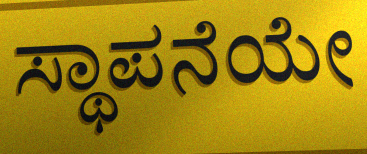
ಸ್ಥಾಪನೆಯೇ